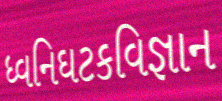
ધ્વનિઘટકવિજ્ઞાન